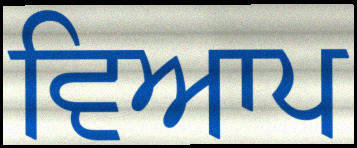
ਵਿਆਪ